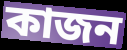
কাজন